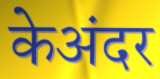
केअंदर